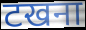
टखना